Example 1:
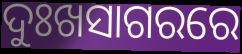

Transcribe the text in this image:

ଦୁଃଖସାଗରରେ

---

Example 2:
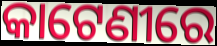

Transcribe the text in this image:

କାଟେଣୀରେ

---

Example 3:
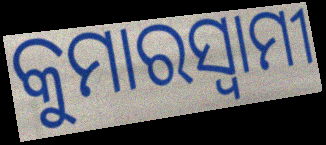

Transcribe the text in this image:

କୁମାରସ୍ୱାମୀ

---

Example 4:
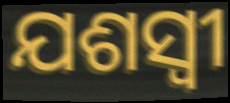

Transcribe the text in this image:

ଯଶସ୍ବୀ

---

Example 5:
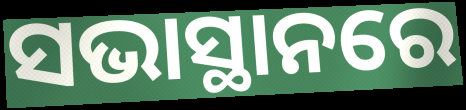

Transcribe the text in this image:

ସଭାସ୍ଥାନରେ